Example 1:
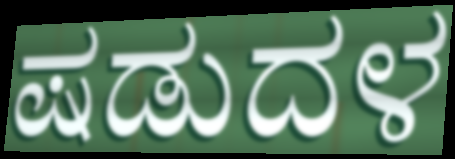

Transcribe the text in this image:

ಷಡುದಳ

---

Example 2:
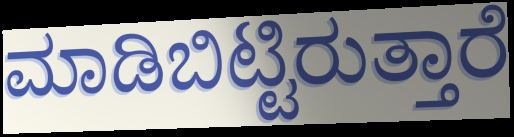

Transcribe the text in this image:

ಮಾಡಿಬಿಟ್ಟಿರುತ್ತಾರೆ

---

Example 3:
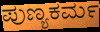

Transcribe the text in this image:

ಪುಣ್ಯಕರ್ಮ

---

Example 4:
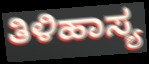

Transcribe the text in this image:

ತಿಳಿಹಾಸ್ಯ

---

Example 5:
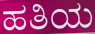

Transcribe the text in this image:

ಹತಿಯ